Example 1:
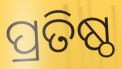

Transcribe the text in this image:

ପ୍ରତିଷ୍ଠ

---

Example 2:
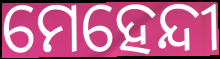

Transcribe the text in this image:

ମେହେନ୍ଦୀ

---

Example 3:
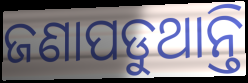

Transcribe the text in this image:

ଜଣାପଡୁଥାନ୍ତି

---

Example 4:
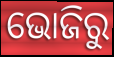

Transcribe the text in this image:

ଭୋଜିରୁ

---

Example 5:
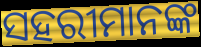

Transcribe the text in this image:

ସହରୀମାନଙ୍କ